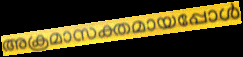
അക്രമാസക്തമായപ്പോൾ